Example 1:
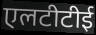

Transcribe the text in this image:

एलटीटीई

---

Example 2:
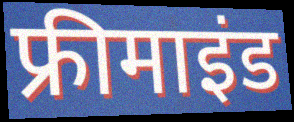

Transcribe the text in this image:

फ्रीमाइंड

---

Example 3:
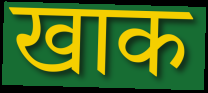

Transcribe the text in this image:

खाक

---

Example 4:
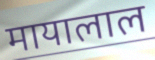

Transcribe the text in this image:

मायालाल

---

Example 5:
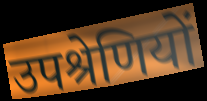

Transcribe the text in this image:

उपश्रेणियों